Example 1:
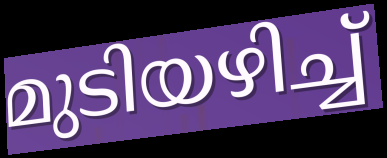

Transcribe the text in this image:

മുടിയഴിച്ച്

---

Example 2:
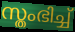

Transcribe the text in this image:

സ്തംഭിച്ച്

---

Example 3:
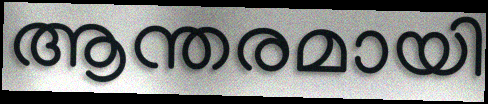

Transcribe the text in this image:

ആന്തരമായി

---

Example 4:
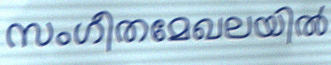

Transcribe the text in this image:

സംഗീതമേഖലയിൽ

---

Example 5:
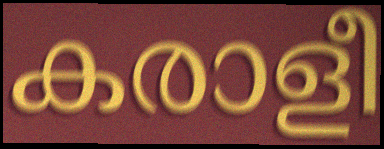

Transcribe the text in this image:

കരാളീ